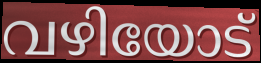
വഴിയോട്